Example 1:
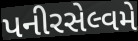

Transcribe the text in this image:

પનીરસેલ્વમે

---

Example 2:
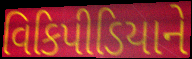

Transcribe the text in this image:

વિકિપીડિયાને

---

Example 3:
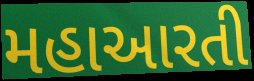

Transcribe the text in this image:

મહાઆરતી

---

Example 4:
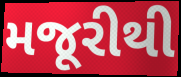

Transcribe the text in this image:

મજૂરીથી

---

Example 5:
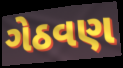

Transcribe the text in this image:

ગેઠવણ